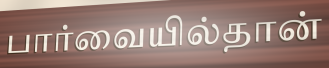
பார்வையில்தான்